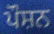
ਪੌਸ਼ਨ